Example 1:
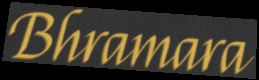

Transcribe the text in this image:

Bhramara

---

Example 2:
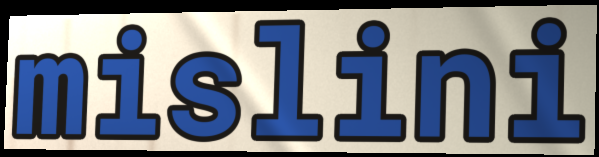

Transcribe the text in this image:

mislini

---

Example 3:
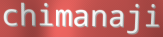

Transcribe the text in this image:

chimanaji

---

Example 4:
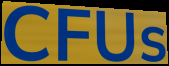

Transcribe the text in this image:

CFUs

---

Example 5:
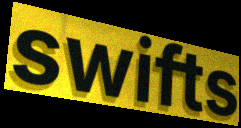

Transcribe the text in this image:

swifts